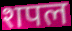
शपल